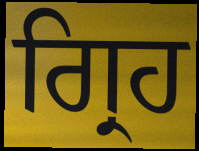
ਗ੍ਰਿਹ